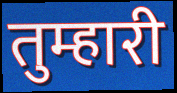
तुम्‍हारी